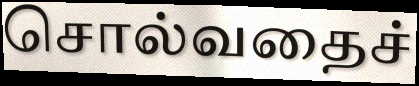
சொல்வதைச்